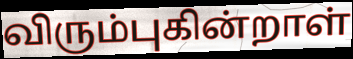
விரும்புகின்றாள்